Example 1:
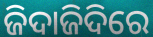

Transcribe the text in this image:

ଜିଦାଜିଦିରେ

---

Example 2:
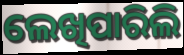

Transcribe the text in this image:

ଲେଖିପାରିଲି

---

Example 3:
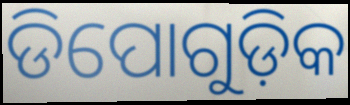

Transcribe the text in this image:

ଡିପୋଗୁଡ଼ିକ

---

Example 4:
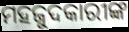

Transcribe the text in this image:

ମହଜୁଦକାରୀଙ୍କ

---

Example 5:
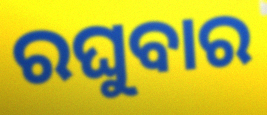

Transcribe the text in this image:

ରଘୁବାର